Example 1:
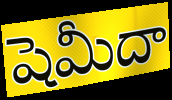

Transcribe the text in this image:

షెమీదా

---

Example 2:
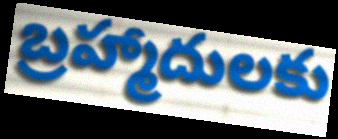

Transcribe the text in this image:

బ్రహ్మాదులకు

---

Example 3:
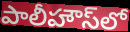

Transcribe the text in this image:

పాలీహౌస్‌లో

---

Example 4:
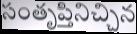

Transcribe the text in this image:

సంతృప్తినిచ్చిన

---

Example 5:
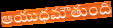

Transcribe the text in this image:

ఆయుధమౌతుంది